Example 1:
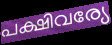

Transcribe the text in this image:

പക്ഷിവര്യേ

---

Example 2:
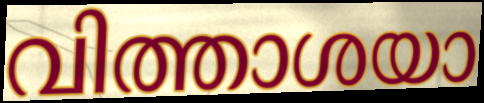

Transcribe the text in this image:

വിത്താശയാ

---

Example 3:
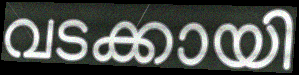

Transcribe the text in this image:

വടക്കായി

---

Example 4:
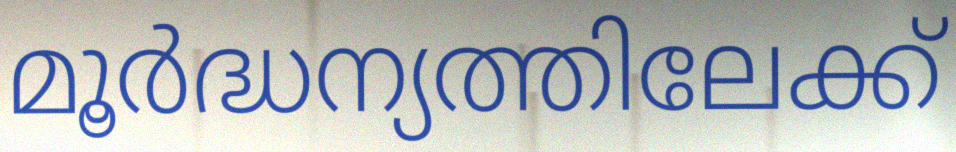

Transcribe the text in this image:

മൂർദ്ധന്യത്തിലേക്ക്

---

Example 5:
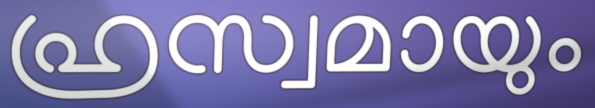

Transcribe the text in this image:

ഹ്രസ്വമായും